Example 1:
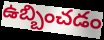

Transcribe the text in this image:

ఉబ్బించడం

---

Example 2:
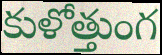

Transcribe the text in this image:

కుళోత్తుంగ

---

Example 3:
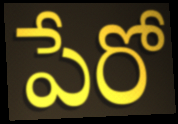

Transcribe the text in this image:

పేరో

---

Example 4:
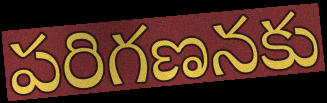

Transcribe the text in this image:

పరిగణనకు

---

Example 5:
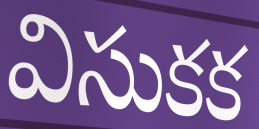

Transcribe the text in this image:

విసుకక